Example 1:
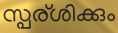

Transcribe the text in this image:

സ്പര്ശിക്കും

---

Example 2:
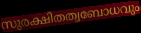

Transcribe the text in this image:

സുരക്ഷിതത്വബോധവും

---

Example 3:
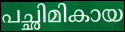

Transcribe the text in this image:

പച്ഛിമികായ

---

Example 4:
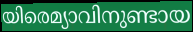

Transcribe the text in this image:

യിരെമ്യാവിനുണ്ടായ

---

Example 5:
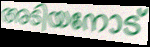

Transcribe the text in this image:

അടിയനോട്